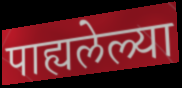
पाह्यलेल्या